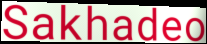
Sakhadeo